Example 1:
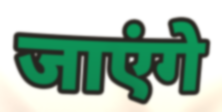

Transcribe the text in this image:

जाएंगे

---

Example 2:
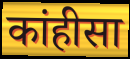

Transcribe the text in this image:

कांहीसा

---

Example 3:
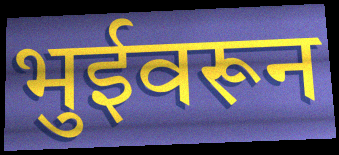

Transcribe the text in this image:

भुईवरून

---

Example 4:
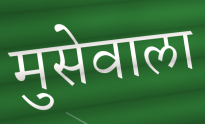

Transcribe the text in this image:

मुसेवाला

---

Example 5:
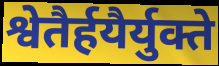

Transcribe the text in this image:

श्वेतैर्हयैर्युक्ते